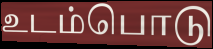
உடம்பொடு